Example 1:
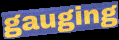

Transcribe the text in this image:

gauging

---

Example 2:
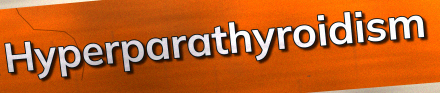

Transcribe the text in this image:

Hyperparathyroidism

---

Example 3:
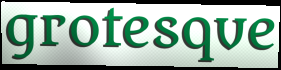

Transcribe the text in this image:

grotesque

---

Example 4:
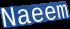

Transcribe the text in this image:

Naeem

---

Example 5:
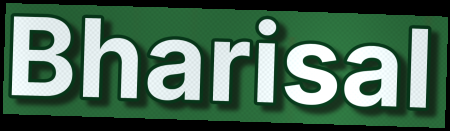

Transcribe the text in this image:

Bharisal